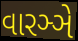
વારઞ્ઞે